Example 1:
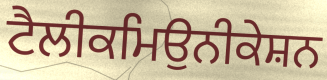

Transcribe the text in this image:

ਟੈਲੀਕਮਿਉਨੀਕੇਸ਼ਨ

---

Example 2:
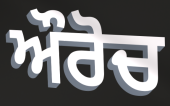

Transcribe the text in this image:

ਔਰੋਚ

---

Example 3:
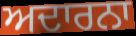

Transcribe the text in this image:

ਅਦਾਰਨਾ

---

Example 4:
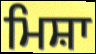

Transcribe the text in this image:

ਮਿਸ਼ਾ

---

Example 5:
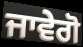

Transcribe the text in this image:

ਜਾਵੇਗੋ